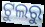
ଟୁଲରୁ